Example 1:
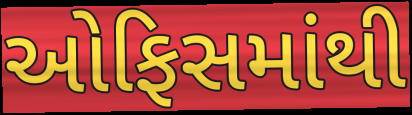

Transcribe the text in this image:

ઓફિસમાંથી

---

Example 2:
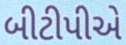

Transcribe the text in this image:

બીટીપીએ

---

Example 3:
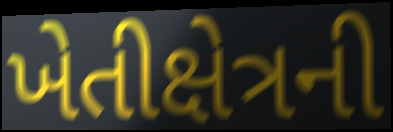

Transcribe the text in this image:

ખેતીક્ષેત્રની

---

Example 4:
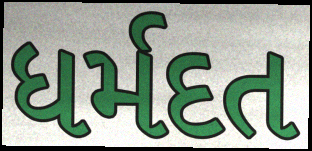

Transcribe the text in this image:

ધર્મદત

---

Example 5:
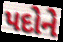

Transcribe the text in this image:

પદોને